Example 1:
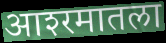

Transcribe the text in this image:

आश्रमातला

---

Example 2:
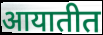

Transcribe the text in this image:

आयातीत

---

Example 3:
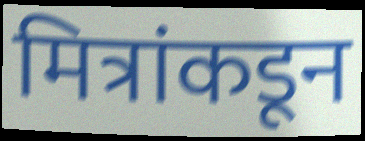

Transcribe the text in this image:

मित्रांकडून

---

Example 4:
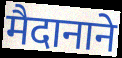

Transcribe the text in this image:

मैदानाने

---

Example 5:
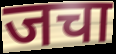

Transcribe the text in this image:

जचा